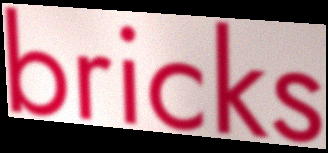
bricks